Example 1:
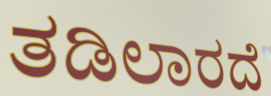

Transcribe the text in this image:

ತಡಿಲಾರದೆ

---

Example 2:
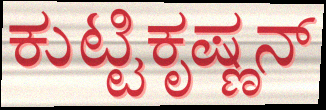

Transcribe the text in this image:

ಕುಟ್ಟಿಕೃಷ್ಣನ್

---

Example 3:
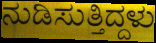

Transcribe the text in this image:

ನುಡಿಸುತ್ತಿದ್ದಳು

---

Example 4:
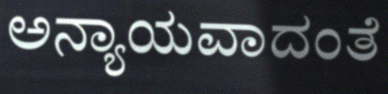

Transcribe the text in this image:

ಅನ್ಯಾಯವಾದಂತೆ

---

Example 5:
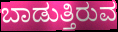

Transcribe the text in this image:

ಬಾಡುತ್ತಿರುವ